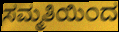
ಸಮ್ಮತಿಯಿಂದ